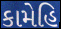
કામેહિ